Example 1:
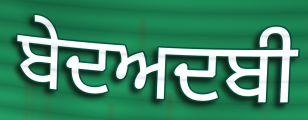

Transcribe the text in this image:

ਬੇਦਅਦਬੀ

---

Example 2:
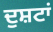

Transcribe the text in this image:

ਦੁਸ਼ਟਾਂ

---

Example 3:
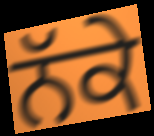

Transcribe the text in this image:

ਨੱਕੇ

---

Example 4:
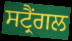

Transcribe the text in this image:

ਸਟ੍ਰੈਂਗਲ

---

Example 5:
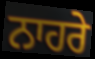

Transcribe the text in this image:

ਨਾਹਰੇ